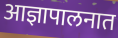
आज्ञापालनात